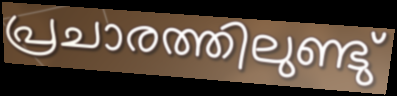
പ്രചാരത്തിലുണ്ടു്